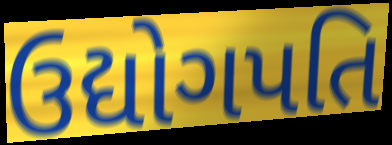
ઉદ્યોગપતિ